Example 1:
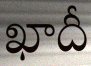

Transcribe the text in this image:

ఖాదీ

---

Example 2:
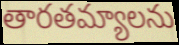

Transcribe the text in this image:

తారతమ్యాలను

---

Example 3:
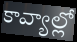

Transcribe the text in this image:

కావ్యాల్లో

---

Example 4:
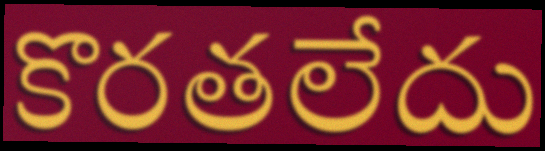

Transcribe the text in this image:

కొరతలేదు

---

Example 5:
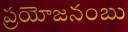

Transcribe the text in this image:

ప్రయోజనంబు